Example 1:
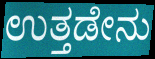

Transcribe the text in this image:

ಉತ್ತಡೇನು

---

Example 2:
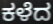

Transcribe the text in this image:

ಕಳೆದ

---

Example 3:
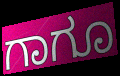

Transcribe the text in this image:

ಗಾಗೂ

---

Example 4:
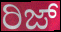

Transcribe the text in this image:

ರಿಜ್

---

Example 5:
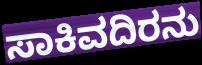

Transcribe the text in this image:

ಸಾಕಿವದಿರನು